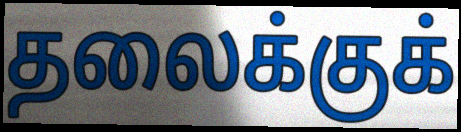
தலைக்குக்